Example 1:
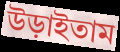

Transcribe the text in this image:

উড়াইতাম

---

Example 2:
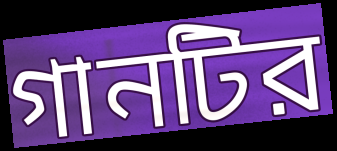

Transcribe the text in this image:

গানটির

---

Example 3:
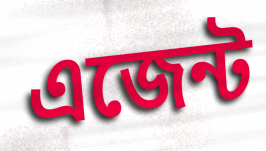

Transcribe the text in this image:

এজেন্ট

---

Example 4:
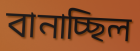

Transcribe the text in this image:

বানাচ্ছিল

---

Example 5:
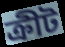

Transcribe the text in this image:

ক্রীট